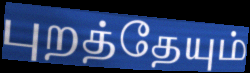
புறத்தேயும்